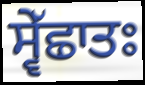
ਸ੍ਵੇੱਛਾਤਃ